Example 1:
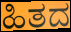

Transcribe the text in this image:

ಹಿತದ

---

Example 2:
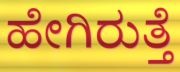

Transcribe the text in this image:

ಹೇಗಿರುತ್ತೆ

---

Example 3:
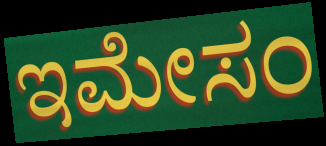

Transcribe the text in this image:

ಇಮೇಸಂ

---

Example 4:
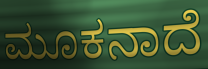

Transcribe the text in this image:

ಮೂಕನಾದೆ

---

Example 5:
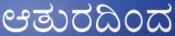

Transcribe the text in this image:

ಆತುರದಿಂದ